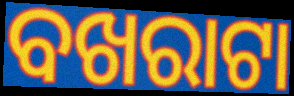
ବଖରାଟା